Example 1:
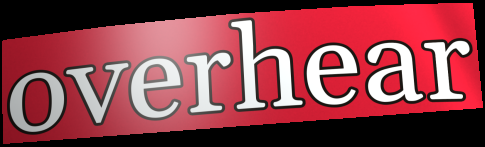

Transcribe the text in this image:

overhear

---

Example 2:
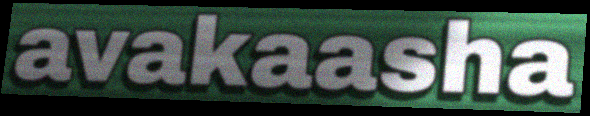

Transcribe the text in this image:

avakaasha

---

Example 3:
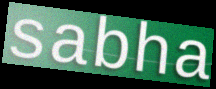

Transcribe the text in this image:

sabha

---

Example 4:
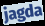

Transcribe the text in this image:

jagda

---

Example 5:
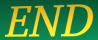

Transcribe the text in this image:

END